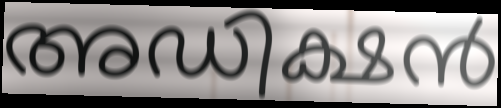
അഡിക്ഷൻ